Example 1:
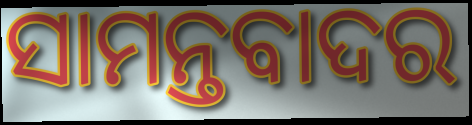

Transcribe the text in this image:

ସାମନ୍ତବାଦର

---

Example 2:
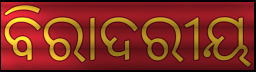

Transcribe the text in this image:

ବିରାଦରୀୟ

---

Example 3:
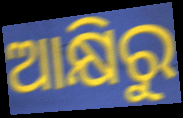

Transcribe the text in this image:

ଆକ୍ଷିରୁ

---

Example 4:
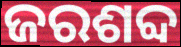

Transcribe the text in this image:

ଜରଶବ୍ଦ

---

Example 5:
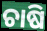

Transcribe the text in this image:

ଚାଷି